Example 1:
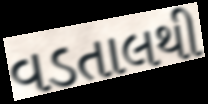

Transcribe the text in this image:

વડતાલથી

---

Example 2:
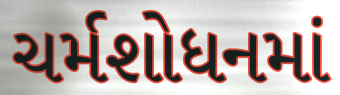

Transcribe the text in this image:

ચર્મશોધનમાં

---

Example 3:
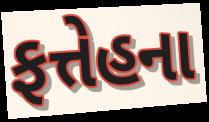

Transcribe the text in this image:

ફત્તેહના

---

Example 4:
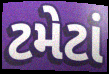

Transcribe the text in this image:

ટમેટાં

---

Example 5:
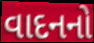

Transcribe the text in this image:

વાદનનો